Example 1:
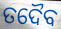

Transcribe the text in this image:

ତଦୈବ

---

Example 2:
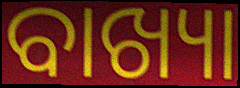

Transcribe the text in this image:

ବାଖ୍ୟା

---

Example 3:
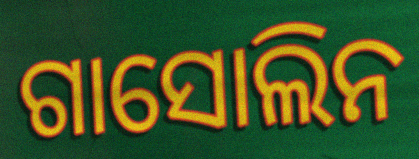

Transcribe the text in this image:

ଗାସୋଲିନ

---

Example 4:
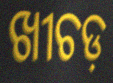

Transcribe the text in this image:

ଖୀଚଡ଼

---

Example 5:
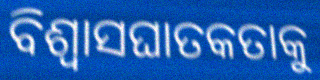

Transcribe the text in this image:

ବିଶ୍ୱାସଘାତକତାକୁ